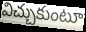
విచ్చుకుంటూ